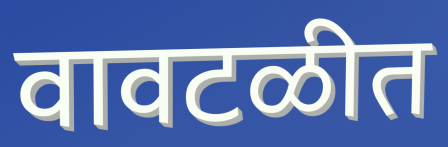
वावटळीत